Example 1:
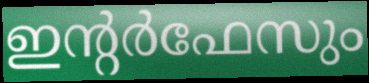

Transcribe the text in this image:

ഇന്റർഫേസും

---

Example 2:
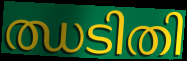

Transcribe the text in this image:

ഝടിതി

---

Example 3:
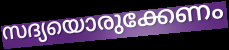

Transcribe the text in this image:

സദ്യയൊരുക്കേണം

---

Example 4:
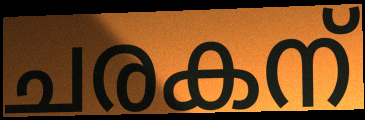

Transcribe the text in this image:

ചരകന്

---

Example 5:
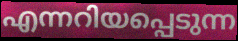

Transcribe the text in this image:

എന്നറിയപ്പെടുന്ന